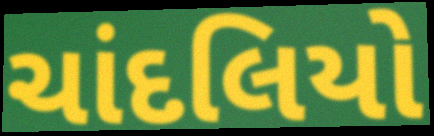
ચાંદલિયો